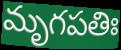
మృగపతిః